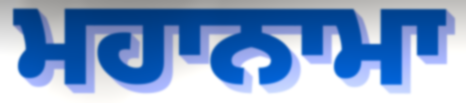
ਮਹਾਨਾਮਾ